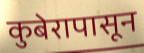
कुबेरापासून